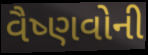
વૈષ્ણવોની